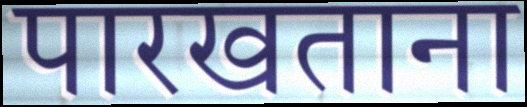
पारखताना